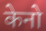
केनो